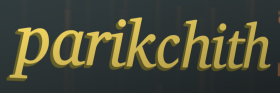
parikchith